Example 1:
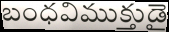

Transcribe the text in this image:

బంధవిముక్తుడై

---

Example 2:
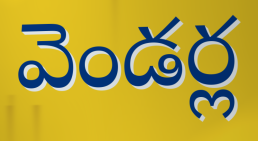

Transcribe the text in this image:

వెండర్ల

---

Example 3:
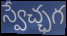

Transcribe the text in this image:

స్వేచ్ఛగ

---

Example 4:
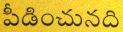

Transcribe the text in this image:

పీడించునది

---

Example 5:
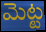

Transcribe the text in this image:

మెట్ట